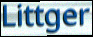
Littger